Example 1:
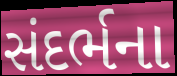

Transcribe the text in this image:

સંદર્ભના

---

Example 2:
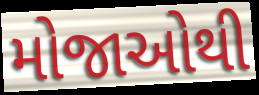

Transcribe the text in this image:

મોજાઓથી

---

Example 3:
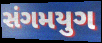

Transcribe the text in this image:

સંગમયુગ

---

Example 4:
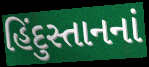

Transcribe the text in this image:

હિંદુસ્તાનનાં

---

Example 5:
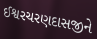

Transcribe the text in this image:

ઈશ્વરચરણદાસજીને